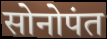
सोनोपंत